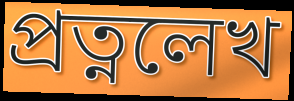
প্রত্নলেখ